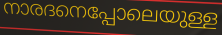
നാരദനെപ്പോലെയുള്ള